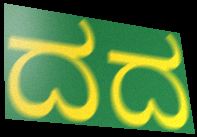
ದದ